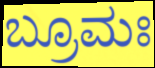
ಬ್ರೂಮಃ